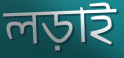
লড়াই